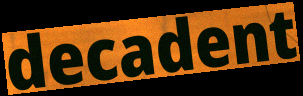
decadent